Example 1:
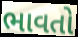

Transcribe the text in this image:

ભાવતો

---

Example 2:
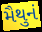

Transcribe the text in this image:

મૈથુનં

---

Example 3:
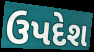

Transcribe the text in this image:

ઉપદેશ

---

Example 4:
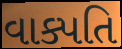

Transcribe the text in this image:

વાક્પતિ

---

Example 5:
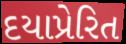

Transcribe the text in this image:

દયાપ્રેરિત